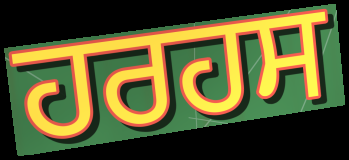
ਹਰਹਸ